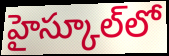
హైస్కూల్‌లో